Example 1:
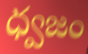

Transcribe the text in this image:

ధ్వజం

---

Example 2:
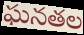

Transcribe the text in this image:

ఘనతల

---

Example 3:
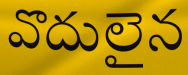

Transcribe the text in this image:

వొదులైన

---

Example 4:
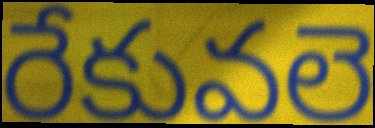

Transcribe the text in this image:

రేకువలె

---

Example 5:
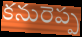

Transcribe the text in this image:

కనురెప్ప